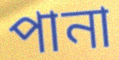
পানা